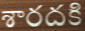
శారదకి